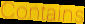
Contains